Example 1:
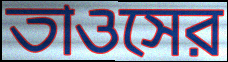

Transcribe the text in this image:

তাওসের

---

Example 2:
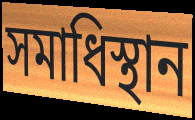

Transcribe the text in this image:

সমাধিস্থান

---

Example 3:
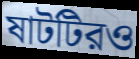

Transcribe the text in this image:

ষাটটিরও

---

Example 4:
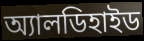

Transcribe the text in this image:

অ্যালডিহাইড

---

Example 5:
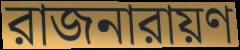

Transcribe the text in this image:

রাজনারায়ণ